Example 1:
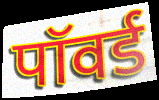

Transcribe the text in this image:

पॉवर्ड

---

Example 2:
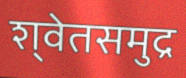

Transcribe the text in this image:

श्वेतसमुद्र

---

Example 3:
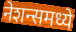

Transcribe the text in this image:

नेशन्समध्ये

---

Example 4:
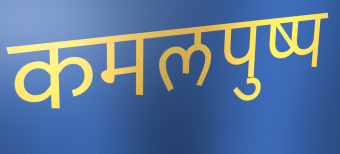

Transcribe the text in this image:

कमलपुष्प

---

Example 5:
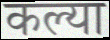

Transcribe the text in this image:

कल्या